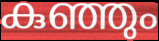
കുഞ്ഞും